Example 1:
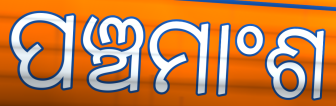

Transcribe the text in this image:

ପଞ୍ଚମାଂଶ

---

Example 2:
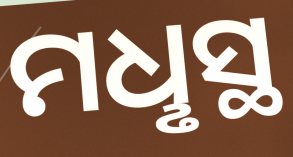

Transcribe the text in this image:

ମଧୢସ୍ଥ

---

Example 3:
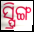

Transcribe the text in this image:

ସ୍ପ୍ରିଙ୍ଗ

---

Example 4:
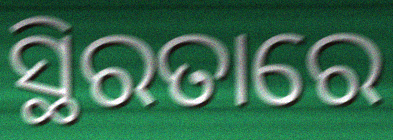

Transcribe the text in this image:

ସ୍ଥିରତାରେ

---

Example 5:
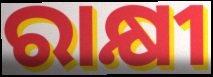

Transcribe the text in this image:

ରାକ୍ଷୀ